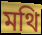
মথি